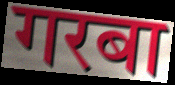
गरबा